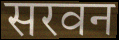
सरवन